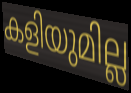
കളിയുമില്ല